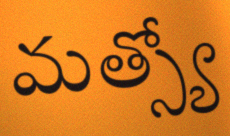
మత్స్యో